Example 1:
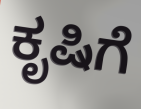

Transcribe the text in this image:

ಕೃಷಿಗೆ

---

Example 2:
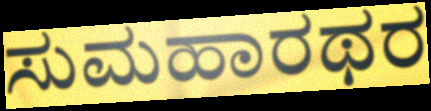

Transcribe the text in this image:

ಸುಮಹಾರಥರ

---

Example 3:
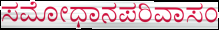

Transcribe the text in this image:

ಸಮೋಧಾನಪರಿವಾಸಂ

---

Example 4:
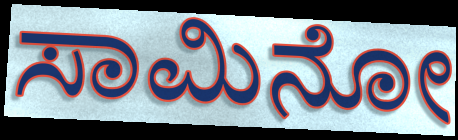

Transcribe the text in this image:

ಸಾಮಿನೋ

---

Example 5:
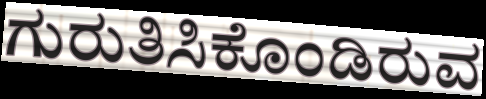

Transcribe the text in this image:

ಗುರುತಿಸಿಕೊಂಡಿರುವ